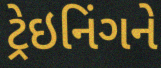
ટ્રેઇનિંગને